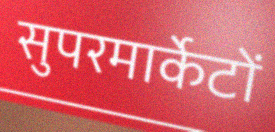
सुपरमार्केटों